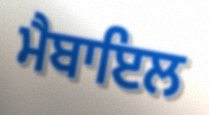
ਮੈਬਾਇਲ